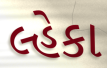
લ્હેકા